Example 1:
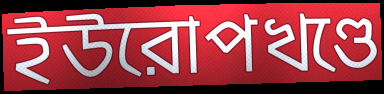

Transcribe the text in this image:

ইউরোপখণ্ডে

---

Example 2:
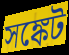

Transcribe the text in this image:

সঙ্কেট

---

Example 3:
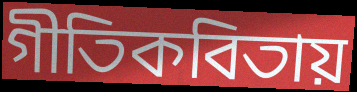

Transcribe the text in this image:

গীতিকবিতায়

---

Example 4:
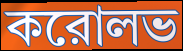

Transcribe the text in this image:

করোলভ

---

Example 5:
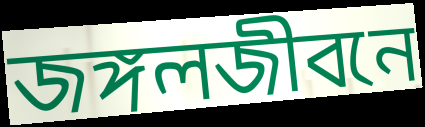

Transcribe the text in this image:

জঙ্গলজীবনে